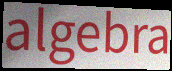
algebra